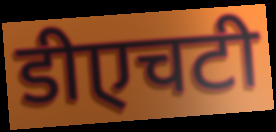
डीएचटी